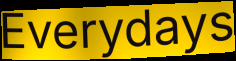
Everydays